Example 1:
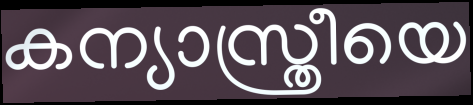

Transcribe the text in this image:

കന്യാസ്ത്രീയെ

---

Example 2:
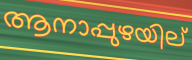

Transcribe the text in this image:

ആനാപ്പുഴയില്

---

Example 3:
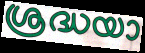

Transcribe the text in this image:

ശ്രദ്ധയാ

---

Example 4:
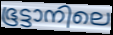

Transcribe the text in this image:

ഭൂട്ടാനിലെ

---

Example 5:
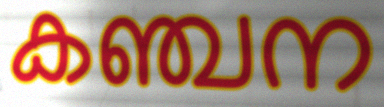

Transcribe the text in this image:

കഞ്ചന